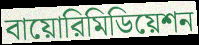
বায়োরিমিডিয়েশন